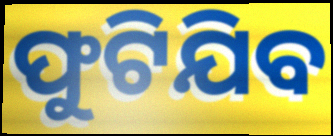
ଫୁଟିଯିବ